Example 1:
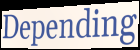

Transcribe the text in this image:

Depending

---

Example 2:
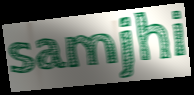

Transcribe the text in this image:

samjhi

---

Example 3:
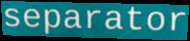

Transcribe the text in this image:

separator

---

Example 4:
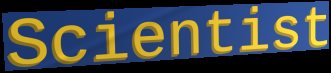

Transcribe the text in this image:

Scientist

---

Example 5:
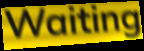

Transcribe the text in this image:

Waiting